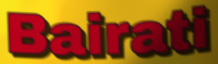
Bairati